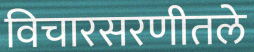
विचारसरणीतले